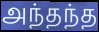
அந்தந்த